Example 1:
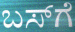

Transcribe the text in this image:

ಬಸ್‍ಗೆ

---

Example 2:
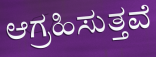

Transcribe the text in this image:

ಆಗ್ರಹಿಸುತ್ತವೆ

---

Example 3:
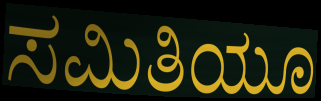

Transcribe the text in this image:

ಸಮಿತಿಯೂ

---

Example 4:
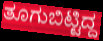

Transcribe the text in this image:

ತೂಗುಬಿಟ್ಟಿದ್ದ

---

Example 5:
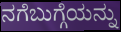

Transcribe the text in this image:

ನಗೆಬುಗ್ಗೆಯನ್ನು